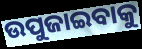
ଉପୁଜାଇବାକୁ